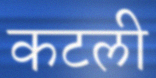
कटली